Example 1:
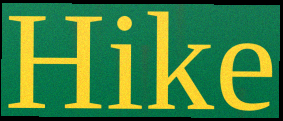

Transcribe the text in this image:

Hike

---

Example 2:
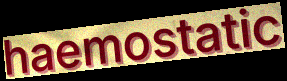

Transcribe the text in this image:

haemostatic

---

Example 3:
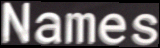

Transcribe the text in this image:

Names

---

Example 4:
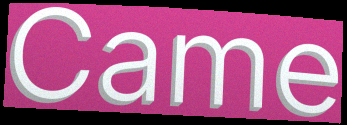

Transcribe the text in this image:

Came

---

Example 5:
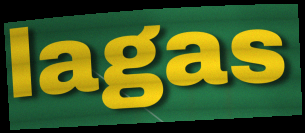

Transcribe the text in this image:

lagas